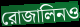
রোজালিনও